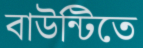
বাউন্টিতে